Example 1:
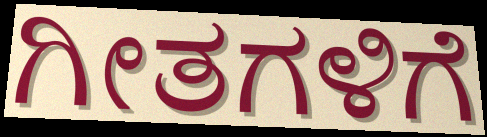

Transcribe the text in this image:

ಗೀತಗಳಿಗೆ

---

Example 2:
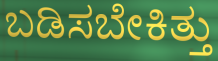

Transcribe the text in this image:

ಬಡಿಸಬೇಕಿತ್ತು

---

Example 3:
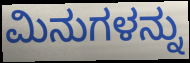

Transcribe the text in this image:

ಮಿನುಗಳನ್ನು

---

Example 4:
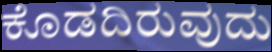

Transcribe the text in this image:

ಕೊಡದಿರುವುದು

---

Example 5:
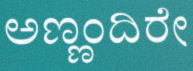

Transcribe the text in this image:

ಅಣ್ಣಂದಿರೇ